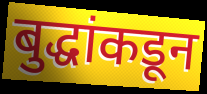
बुद्धांकडून